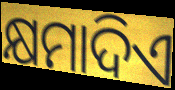
କ୍ଷମାଦିଏ